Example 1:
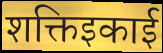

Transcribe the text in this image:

शक्तिइकाई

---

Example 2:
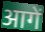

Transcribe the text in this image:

आगें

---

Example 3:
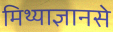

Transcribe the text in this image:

मिथ्याज्ञानसे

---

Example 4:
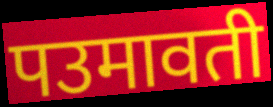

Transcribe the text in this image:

पउमावती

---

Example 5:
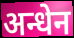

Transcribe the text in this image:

अन्धेन